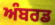
ਅੰਬਰਡ